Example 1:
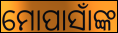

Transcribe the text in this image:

ମୋପାସାଁଙ୍କ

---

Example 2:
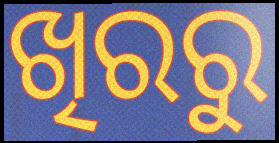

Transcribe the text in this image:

ଖିରରୁ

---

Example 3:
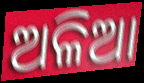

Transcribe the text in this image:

ଅଳିଆ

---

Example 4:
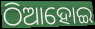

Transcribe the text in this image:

ଠିଆହୋଇ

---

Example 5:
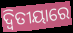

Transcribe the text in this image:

ଦ୍ୱିତୀୟାରେ